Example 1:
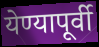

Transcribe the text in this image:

येण्यापूर्वी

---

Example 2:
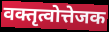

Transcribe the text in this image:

वक्तृत्वोत्तेजक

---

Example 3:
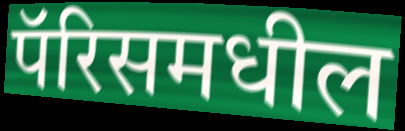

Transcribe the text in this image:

पॅरिसमधील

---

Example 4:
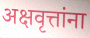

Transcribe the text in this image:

अक्षवृत्तांना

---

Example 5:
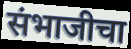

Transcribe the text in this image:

संभाजीचा